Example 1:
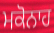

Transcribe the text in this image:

ਮਕੋਨਾਹ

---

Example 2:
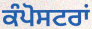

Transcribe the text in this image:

ਕੰਪੋਸਟਰਾਂ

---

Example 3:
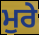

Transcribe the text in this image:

ਮੁਰੇ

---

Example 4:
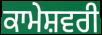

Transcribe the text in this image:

ਕਾਮੇਸ਼ਵਰੀ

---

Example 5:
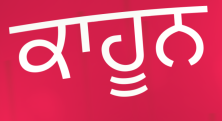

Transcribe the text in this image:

ਕਾਹੂਨ